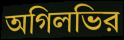
অগিলভির